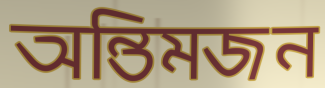
অন্তিমজন